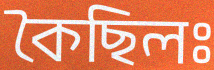
কৈছিলঃ